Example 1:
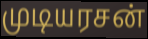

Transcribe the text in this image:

முடியரசன்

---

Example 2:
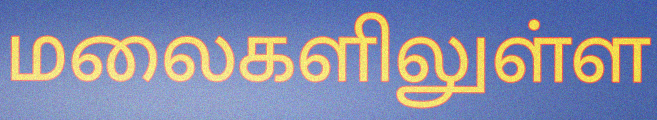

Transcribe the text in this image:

மலைகளிலுள்ள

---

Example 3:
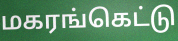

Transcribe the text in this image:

மகரங்கெட்டு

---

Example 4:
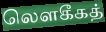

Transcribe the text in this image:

லௌகீகத்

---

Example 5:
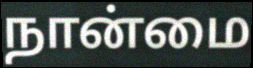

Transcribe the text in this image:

நான்மை